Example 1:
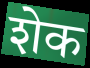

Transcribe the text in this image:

शेक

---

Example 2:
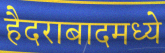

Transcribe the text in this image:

हैदराबादमध्ये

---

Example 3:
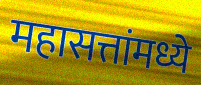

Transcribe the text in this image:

महासत्तांमध्ये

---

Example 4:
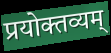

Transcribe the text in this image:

प्रयोक्तव्यम्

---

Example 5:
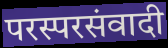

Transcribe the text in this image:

परस्परसंवादी